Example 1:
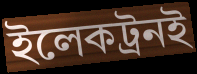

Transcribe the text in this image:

ইলেকট্রনই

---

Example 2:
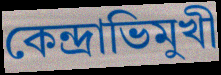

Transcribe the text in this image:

কেন্দ্রাভিমুখী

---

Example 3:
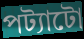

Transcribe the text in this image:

পট্যাটো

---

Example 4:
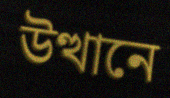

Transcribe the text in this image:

উত্থানে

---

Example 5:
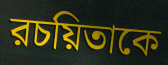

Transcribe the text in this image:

রচয়িতাকে